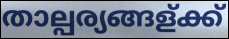
താല്പര്യങ്ങള്ക്ക്